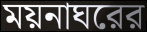
ময়নাঘরের